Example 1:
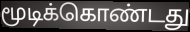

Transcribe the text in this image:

மூடிக்கொண்டது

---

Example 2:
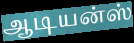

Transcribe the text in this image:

ஆடியன்ஸ்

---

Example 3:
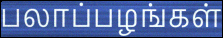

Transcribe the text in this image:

பலாப்பழங்கள்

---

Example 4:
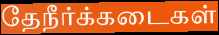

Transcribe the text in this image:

தேநீர்க்கடைகள்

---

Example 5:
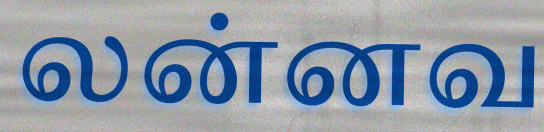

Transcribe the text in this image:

லன்னவ